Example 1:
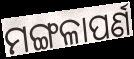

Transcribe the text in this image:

ମଙ୍ଗଳାପର୍ଣ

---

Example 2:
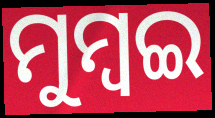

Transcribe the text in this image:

ମୁମ୍ବଇ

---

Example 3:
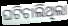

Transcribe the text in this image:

ଘଟିଚାଲିଥିଲା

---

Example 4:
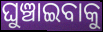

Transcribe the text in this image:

ଘୁଞ୍ଚାଇବାକୁ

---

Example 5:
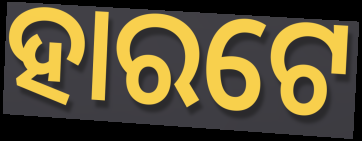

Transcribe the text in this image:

ହାରଟେ